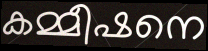
കമ്മീഷനെ